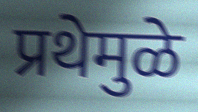
प्रथेमुळे